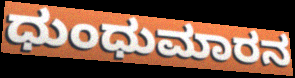
ಧುಂಧುಮಾರನ